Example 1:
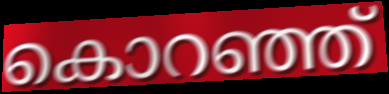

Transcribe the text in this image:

കൊറഞ്ഞ്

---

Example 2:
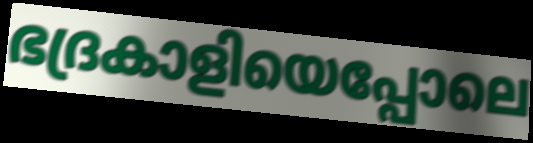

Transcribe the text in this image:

ഭദ്രകാളിയെപ്പോലെ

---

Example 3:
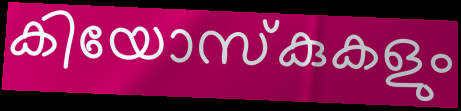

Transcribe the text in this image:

കിയോസ്കുകളും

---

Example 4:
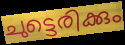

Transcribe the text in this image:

ചുട്ടെരിക്കും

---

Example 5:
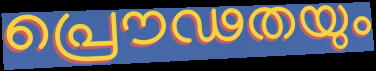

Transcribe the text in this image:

പ്രൌഢതയും